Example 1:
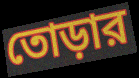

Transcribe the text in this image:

তোড়ার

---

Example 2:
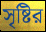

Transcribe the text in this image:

সৃষ্টির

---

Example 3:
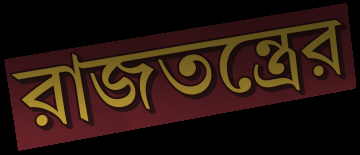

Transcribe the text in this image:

রাজতন্ত্রের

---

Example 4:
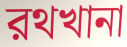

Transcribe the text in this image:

রথখানা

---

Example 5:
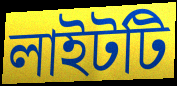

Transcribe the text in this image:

লাইটটি